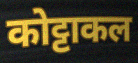
कोट्टाकल